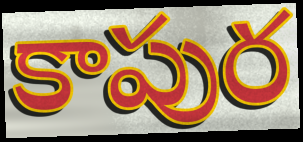
కాపుర